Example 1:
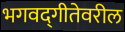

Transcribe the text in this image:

भगवद्‌गीतेवरील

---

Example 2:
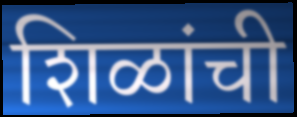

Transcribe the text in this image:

शिळांची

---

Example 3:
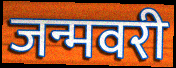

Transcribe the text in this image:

जन्मवरी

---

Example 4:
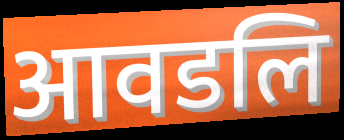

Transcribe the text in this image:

आवडलि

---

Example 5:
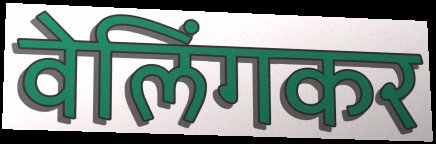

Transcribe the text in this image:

वेलिंगकर